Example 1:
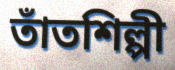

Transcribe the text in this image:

তাঁতশিল্পী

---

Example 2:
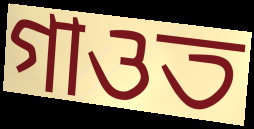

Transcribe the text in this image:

গাওত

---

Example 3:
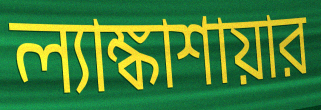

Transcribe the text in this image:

ল্যাঙ্কাশায়ার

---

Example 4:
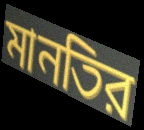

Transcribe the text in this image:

মানতির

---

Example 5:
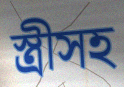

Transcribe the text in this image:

স্ত্রীসহ